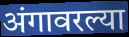
अंगावरल्या